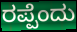
ರಪ್ಪೆಂದು